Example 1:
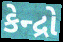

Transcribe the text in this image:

કેન્દ્રો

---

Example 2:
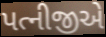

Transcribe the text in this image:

પત્નીજીએ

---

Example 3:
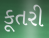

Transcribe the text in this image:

કૂતરી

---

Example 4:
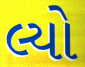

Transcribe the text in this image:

લ્યો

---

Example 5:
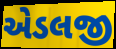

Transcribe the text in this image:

એડલજી